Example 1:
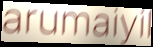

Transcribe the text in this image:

arumaiyil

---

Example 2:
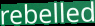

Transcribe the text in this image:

rebelled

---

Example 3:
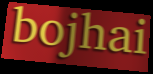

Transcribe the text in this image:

bojhai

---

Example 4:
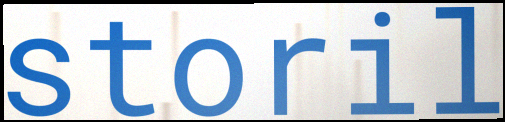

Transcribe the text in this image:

storil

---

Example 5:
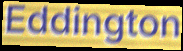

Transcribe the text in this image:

Eddington